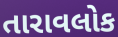
તારાવલોક